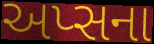
અપ્સના